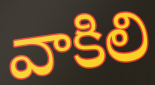
వాకిలి